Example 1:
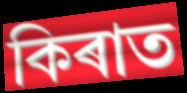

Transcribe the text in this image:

কিৰাত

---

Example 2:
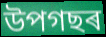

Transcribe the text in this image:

উপগছৰ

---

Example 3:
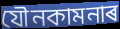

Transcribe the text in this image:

যৌনকামনাৰ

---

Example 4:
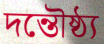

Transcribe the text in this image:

দন্তৌষ্ঠ্য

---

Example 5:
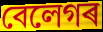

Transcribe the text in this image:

বেলেগৰ